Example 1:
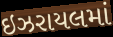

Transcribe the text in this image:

ઇઝરાયલમાં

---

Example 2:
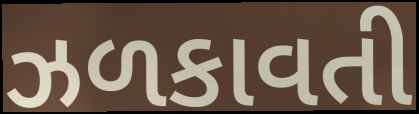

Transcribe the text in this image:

ઝળકાવતી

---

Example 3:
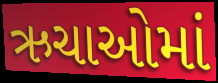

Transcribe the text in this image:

ઋચાઓમાં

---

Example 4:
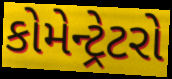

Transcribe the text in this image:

કોમેન્ટ્રેટરો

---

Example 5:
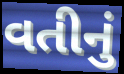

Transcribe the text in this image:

વતીનું